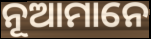
ନୂଆମାନେ